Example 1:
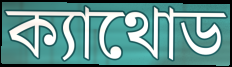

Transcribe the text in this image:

ক্যাথোড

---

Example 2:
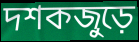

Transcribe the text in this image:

দশকজুড়ে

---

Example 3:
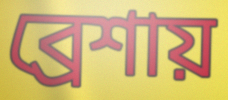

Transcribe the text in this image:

ব্রেশায়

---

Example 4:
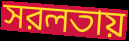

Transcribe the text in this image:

সরলতায়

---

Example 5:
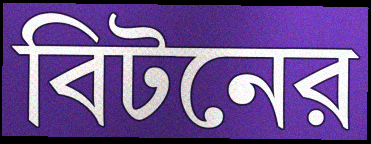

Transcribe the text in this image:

বিটনের